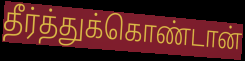
தீர்த்துக்கொண்டான்